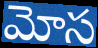
మోస